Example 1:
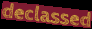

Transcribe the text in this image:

declassed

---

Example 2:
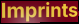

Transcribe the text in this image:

Imprints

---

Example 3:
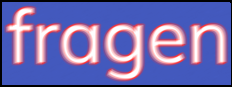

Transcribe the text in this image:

fragen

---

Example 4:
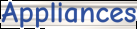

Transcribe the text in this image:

Appliances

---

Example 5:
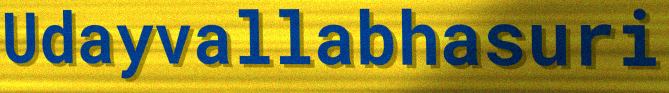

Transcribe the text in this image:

Udayvallabhasuri